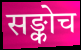
सङ्कोच